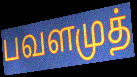
பவளமுத்